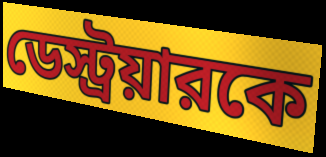
ডেস্ট্রয়ারকে